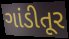
ગાંડીતૂર